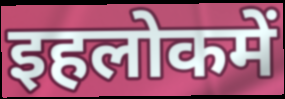
इहलोकमें